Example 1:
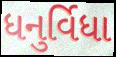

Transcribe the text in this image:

ધનુર્વિધા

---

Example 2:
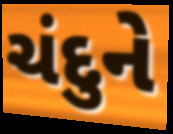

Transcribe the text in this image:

ચંદુને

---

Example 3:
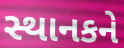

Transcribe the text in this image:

સ્થાનકને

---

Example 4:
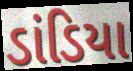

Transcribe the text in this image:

ડાંડિયા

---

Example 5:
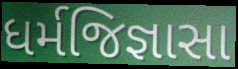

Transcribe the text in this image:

ધર્મજિજ્ઞાસા